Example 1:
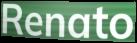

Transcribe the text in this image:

Renato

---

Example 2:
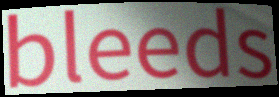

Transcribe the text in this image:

bleeds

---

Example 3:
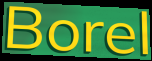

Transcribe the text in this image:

Borel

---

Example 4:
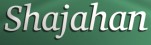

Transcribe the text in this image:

Shajahan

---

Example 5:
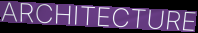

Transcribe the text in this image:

ARCHITECTURE